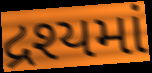
દ્રશ્યમાં